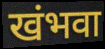
खंभवा